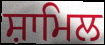
ਸ਼ਾਮਿਲ